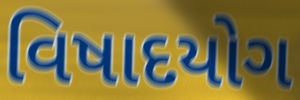
વિષાદયોગ